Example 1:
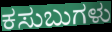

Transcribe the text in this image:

ಕಸುಬುಗಳು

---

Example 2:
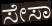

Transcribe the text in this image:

ಸೇಸಾ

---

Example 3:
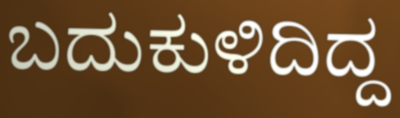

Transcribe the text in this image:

ಬದುಕುಳಿದಿದ್ದ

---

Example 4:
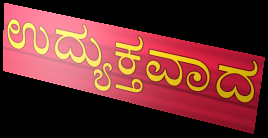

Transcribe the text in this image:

ಉದ್ಯುಕ್ತವಾದ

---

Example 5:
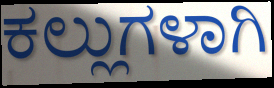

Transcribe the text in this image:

ಕಲ್ಲುಗಳಾಗಿ